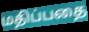
மதிப்பதை